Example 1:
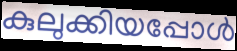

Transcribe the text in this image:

കുലുക്കിയപ്പോൾ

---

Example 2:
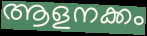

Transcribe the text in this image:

ആളനക്കം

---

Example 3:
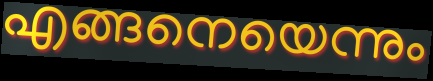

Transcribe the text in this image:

എങ്ങനെയെന്നും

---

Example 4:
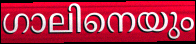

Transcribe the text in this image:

ഗാലിനെയും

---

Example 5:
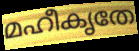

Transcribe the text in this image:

മഹീകൃതേ